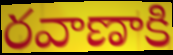
రవాణాకి